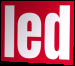
led